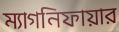
ম্যাগনিফায়ার